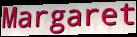
Margaret